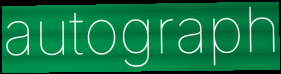
autograph